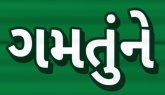
ગમતુંને